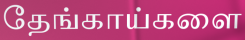
தேங்காய்களை